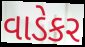
વાડેકર